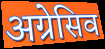
अग्रेसिव